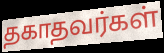
தகாதவர்கள்